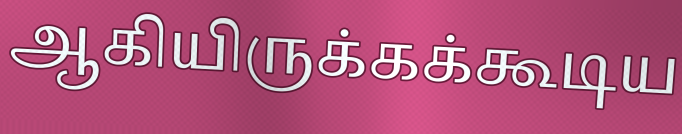
ஆகியிருக்கக்கூடிய